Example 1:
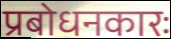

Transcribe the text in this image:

प्रबोधनकारः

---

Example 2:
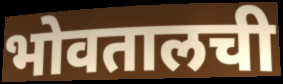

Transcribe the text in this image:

भोवतालची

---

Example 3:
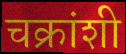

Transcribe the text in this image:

चक्रांशी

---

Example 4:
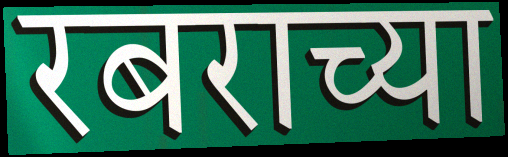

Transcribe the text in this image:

रबराच्या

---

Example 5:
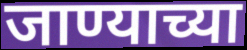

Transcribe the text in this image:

जाण्याच्या